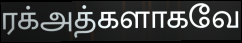
ரக்அத்களாகவே